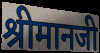
श्रीमानजी